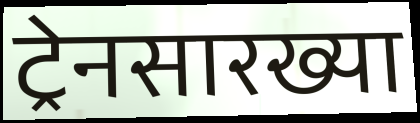
ट्रेनसारख्या